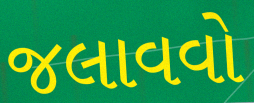
જલાવવો